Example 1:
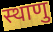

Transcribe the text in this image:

स्थाणु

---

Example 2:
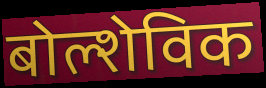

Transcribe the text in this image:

बोल्शेविक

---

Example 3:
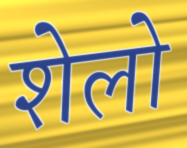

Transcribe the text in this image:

शेलो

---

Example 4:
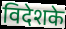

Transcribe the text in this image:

विदेशके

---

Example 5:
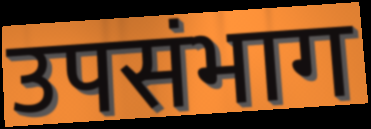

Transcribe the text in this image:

उपसंभाग